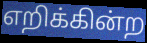
எறிக்கின்ற